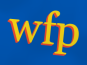
wfp